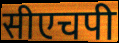
सीएचपी